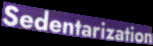
Sedentarization